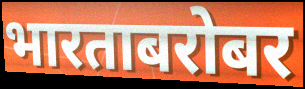
भारताबरोबर